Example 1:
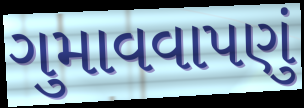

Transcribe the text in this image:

ગુમાવવાપણું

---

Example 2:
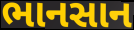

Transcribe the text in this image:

ભાનસાન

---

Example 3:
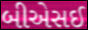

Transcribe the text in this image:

બીએસઈ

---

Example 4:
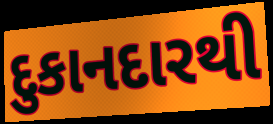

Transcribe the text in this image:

દુકાનદારથી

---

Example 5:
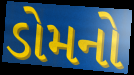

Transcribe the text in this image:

ડોમનો